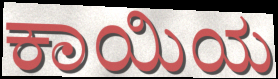
ಕಾಯಿಯ